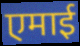
एमाई